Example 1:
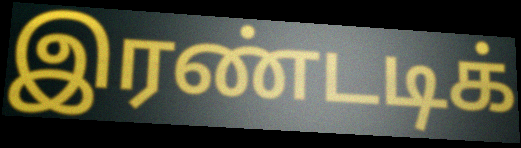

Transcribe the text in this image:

இரண்டடிக்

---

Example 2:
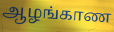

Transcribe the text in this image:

ஆழங்காண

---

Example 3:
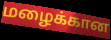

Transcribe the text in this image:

மழைக்கான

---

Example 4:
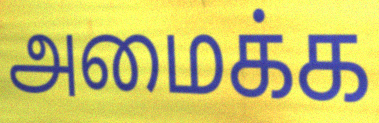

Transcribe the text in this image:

அமைக்க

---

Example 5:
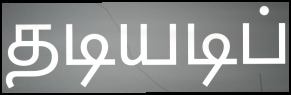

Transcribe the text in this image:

தடியடிப்